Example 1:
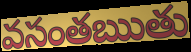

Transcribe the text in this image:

వసంతఋతు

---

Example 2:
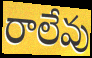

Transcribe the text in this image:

రాలేవు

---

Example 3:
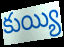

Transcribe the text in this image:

కుయ్యి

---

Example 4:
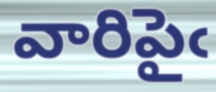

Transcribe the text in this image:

వారిపైఁ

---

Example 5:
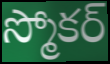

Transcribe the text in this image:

స్మోకర్